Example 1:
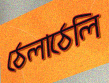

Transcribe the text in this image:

ঠেলাঠেলি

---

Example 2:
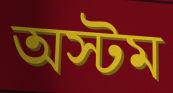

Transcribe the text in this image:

অস্টম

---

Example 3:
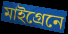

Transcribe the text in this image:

মাইগ্রেনে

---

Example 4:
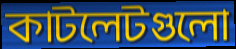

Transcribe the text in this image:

কাটলেটগুলো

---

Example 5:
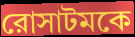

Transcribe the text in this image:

রোসাটমকে